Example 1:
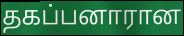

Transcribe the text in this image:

தகப்பனாரான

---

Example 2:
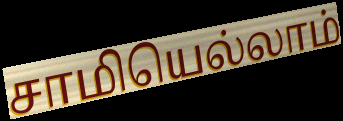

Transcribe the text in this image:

சாமியெல்லாம்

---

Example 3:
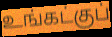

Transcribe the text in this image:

உங்கட்குப்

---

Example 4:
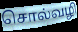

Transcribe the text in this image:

சொல்வழி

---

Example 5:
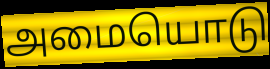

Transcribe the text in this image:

அமையொடு